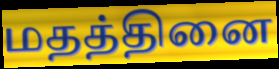
மதத்தினை